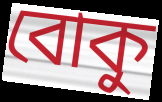
বোকু